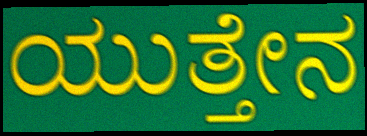
ಯುತ್ತೇನ